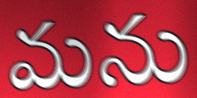
మను